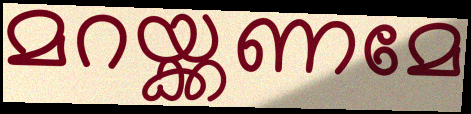
മറയ്ക്കണമേ